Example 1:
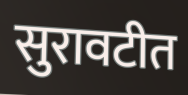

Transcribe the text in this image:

सुरावटीत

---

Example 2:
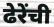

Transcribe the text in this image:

ढेरेंची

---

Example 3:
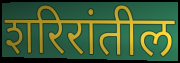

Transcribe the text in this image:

शरिरांतील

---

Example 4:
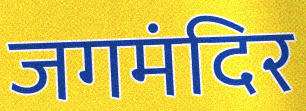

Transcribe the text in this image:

जगमंदिर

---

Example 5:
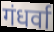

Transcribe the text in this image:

गंधर्वा